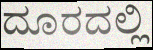
ದೂರದಲ್ಲಿ